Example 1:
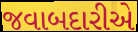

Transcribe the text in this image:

જવાબદારીએ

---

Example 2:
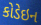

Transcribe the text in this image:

કોડેઇન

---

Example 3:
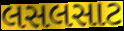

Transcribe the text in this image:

લસલસાટ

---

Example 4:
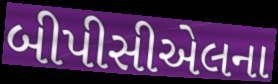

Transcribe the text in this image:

બીપીસીએલના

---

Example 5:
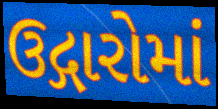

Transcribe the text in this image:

ઉદ્ગારોમાં